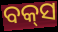
ବକ୍‌ସ